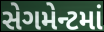
સેગમેન્ટમાં